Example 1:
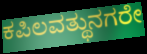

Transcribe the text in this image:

ಕಪಿಲವತ್ಥುನಗರೇ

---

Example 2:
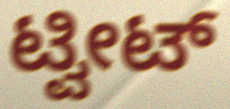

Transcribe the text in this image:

ಟ್ವೀಟ್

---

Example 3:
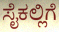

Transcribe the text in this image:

ಸೈಕಲ್ಲಿಗೆ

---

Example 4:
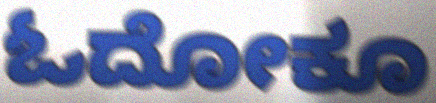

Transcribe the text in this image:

ಓದೋಕೂ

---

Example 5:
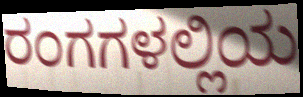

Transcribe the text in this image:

ರಂಗಗಳಲ್ಲಿಯ